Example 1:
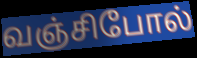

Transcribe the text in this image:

வஞ்சிபோல்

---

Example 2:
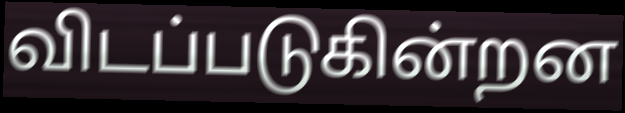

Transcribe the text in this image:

விடப்படுகின்றன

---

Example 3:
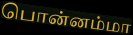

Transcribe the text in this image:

பொன்னம்மா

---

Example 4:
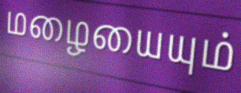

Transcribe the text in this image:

மழையையும்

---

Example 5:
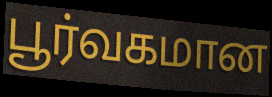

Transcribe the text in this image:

பூர்வகமான